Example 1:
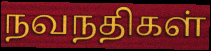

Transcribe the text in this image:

நவநதிகள்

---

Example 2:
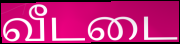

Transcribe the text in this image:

வீடடை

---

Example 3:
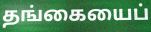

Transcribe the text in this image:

தங்கையைப்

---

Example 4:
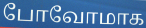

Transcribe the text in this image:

போவோமாக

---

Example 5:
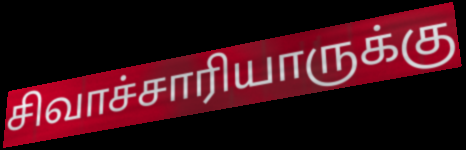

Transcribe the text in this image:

சிவாச்சாரியாருக்கு